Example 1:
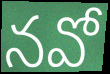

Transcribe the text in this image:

నవో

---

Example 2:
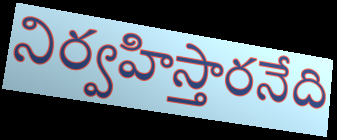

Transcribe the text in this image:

నిర్వహిస్తారనేది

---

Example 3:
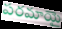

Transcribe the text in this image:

పరమాయై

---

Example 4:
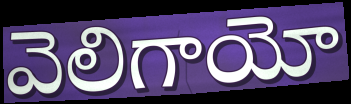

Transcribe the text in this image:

వెలిగాయో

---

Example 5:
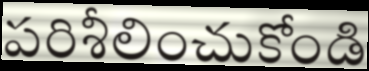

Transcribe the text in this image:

పరిశీలించుకోండి